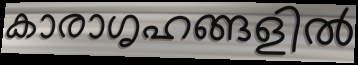
കാരാഗൃഹങ്ങളിൽ